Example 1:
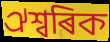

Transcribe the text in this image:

ঐশ্বৰিক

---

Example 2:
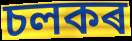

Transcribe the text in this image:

চলকৰ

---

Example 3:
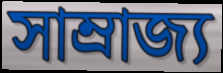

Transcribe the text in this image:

সাম্ৰাজ্য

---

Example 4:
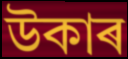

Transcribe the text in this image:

উকাৰ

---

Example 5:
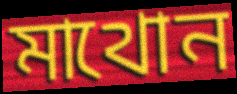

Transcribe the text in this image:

মাথোন